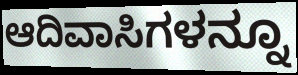
ಆದಿವಾಸಿಗಳನ್ನೂ